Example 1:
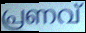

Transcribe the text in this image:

പ്രണവ്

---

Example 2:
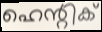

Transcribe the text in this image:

ഹെന്റിക്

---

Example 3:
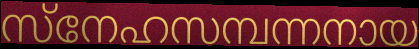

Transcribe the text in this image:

സ്നേഹസമ്പന്നനായ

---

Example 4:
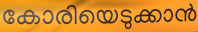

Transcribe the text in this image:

കോരിയെടുക്കാൻ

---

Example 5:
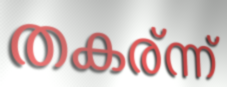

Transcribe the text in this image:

തകര്ന്ന്